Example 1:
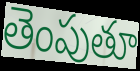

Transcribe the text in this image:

తెంపుతూ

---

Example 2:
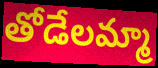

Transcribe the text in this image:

తోడేలమ్మా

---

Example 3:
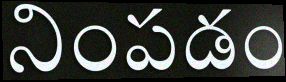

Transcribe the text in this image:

నింపడం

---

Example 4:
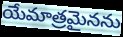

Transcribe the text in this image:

యేమాత్రమైనను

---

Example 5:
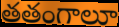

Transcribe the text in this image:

తతంగాలూ